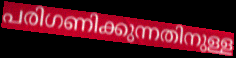
പരിഗണിക്കുന്നതിനുള്ള